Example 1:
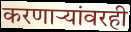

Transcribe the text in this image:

करणाऱ्यांवरही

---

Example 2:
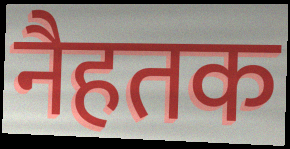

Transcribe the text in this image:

नैहतक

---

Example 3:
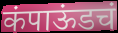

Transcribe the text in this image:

कंपाऊंडचं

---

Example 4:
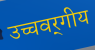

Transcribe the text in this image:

उच्चवर्गीय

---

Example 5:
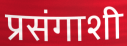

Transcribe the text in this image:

प्रसंगाशी